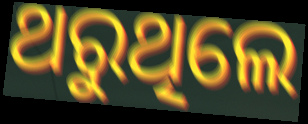
ଥରୁଥିଲେ